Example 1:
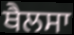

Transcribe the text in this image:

ਥੈਲਸਾ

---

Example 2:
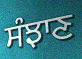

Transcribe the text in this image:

ਸੰਝਾਣ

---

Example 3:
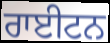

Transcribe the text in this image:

ਰਾਈਟਨ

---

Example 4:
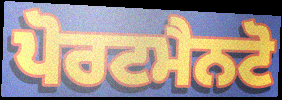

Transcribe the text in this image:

ਪੋਰਟਮੈਨਟੋ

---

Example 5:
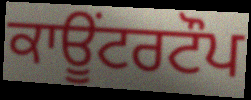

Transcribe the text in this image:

ਕਾਊਂਟਰਟੌਪ